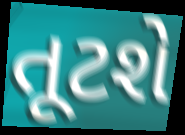
તૂટશે